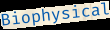
Biophysical